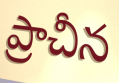
ప్రాచీన